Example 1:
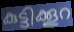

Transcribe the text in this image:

കുട്ടിക്കൂറ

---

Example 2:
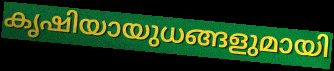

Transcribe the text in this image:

കൃഷിയായുധങ്ങളുമായി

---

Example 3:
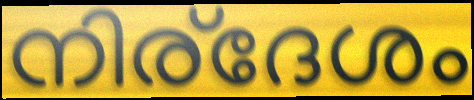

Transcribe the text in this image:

നിര്ദേശം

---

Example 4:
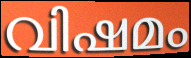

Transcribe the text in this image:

വിഷമം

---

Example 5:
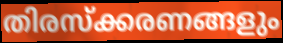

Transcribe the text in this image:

തിരസ്ക്കരണങ്ങളും